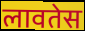
लावतेस